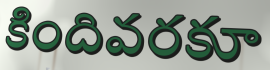
కిందివరకూ